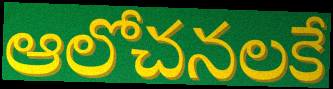
ఆలోచనలకే